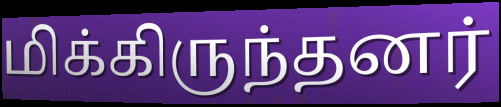
மிக்கிருந்தனர்